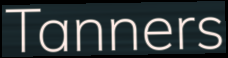
Tanners